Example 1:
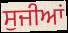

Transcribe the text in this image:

ਸੁਜੀਆਂ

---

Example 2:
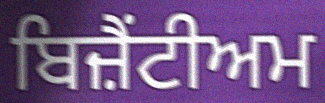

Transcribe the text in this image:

ਬਿਜ਼ੈਂਟੀਅਮ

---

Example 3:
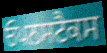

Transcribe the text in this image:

ਓਪਨਸਟੈਕਸ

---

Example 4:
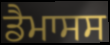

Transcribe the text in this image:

ਡੈਮਾਸਸ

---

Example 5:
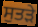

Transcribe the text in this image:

ਸੁਤੜੇ